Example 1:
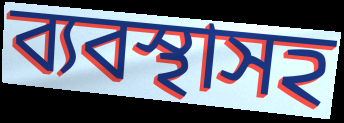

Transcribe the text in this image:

ব্যবস্থাসহ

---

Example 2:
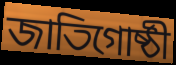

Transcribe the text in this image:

জাতিগোষ্ঠী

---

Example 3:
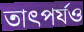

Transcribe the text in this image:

তাৎপর্যও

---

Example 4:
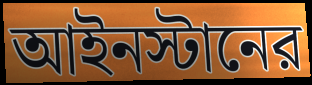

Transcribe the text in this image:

আইনস্টানের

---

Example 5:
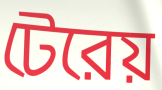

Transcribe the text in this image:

টেরেয়